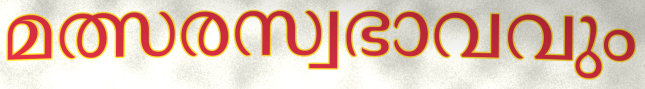
മത്സരസ്വഭാവവും